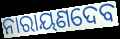
ନାରାୟଣଦେବ